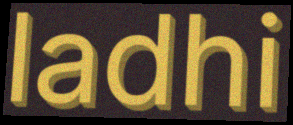
ladhi